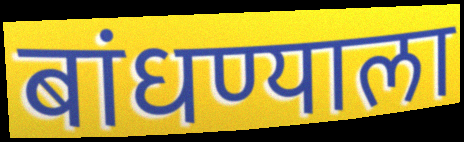
बांधण्याला